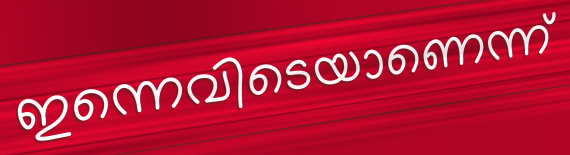
ഇന്നെവിടെയാണെന്ന്